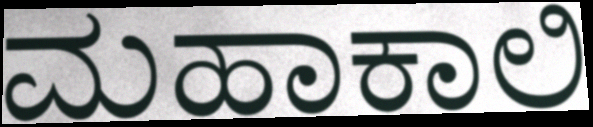
ಮಹಾಕಾಲಿ